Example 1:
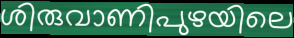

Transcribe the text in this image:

ശിരുവാണിപുഴയിലെ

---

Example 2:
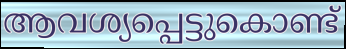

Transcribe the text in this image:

ആവശ്യപ്പെട്ടുകൊണ്ട്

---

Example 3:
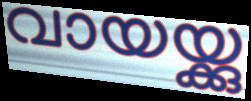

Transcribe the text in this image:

വായയ്ക്കു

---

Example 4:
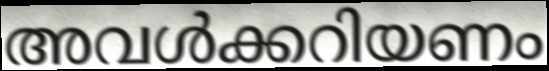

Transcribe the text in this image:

അവൾക്കറിയണം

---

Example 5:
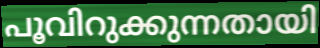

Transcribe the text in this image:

പൂവിറുക്കുന്നതായി